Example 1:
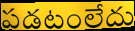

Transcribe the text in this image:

పడటంలేదు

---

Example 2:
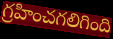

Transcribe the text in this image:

గ్రహించగలిగింది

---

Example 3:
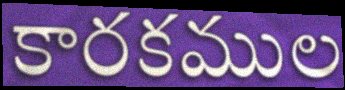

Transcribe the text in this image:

కారకముల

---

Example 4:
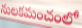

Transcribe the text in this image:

నులకమంచంలో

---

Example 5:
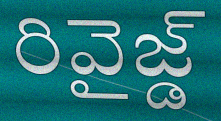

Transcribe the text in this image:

రివైజ్డ్